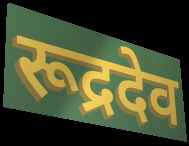
रूद्रदेव